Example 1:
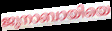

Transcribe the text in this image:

ജുനാബായിയെ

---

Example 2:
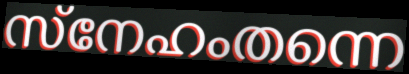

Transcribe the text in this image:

സ്‌നേഹംതന്നെ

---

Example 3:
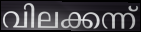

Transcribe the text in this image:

വിലക്കന്ന്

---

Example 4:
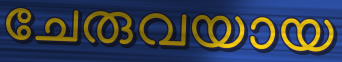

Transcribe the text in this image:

ചേരുവയായ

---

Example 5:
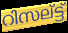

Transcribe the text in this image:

റിസല്ട്ട്